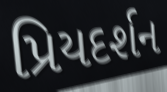
પ્રિયદર્શન